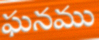
ఘనము